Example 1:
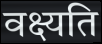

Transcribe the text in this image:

वक्ष्यति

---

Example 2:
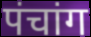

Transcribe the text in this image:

पंचांग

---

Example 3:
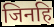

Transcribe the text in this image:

जिनहि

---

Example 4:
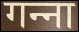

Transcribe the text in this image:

गन्‍ना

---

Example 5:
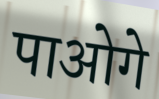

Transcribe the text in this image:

पाओगे